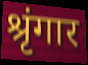
श्रृंगार